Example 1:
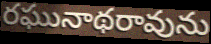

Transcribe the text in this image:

రఘునాథరావును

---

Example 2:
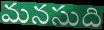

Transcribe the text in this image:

మనసుది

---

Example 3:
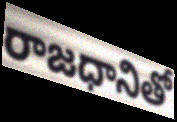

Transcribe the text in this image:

రాజధానితో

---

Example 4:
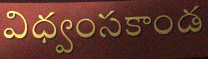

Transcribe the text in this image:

విధ్వంసకాండ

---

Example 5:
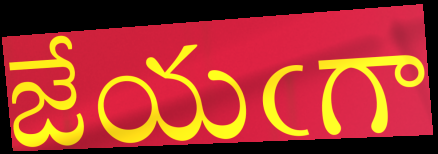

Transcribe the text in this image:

జేయఁగా